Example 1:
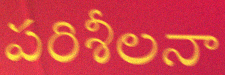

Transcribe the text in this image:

పరిశీలనా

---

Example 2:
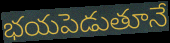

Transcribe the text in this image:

భయపెడుతూనే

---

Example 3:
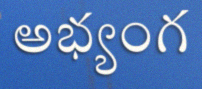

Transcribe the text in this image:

అభ్యంగ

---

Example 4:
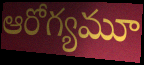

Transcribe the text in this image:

ఆరోగ్యమూ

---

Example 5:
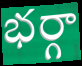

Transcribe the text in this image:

భర్గా